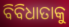
ବିବିଧାତାକୁ